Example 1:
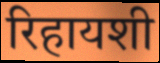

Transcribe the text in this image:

रिहायशी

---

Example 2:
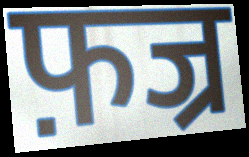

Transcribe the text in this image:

फ़ज्र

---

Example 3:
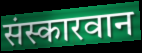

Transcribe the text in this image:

संस्कारवान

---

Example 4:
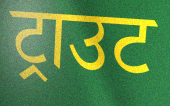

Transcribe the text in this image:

ट्राउट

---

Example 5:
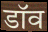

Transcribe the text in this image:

डॉव